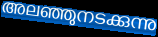
അലഞ്ഞുനടക്കുന്നു